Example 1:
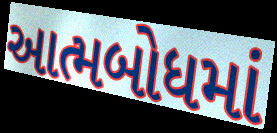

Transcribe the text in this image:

આત્મબોધમાં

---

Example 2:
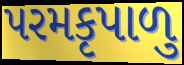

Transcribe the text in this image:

પરમકૃપાળુ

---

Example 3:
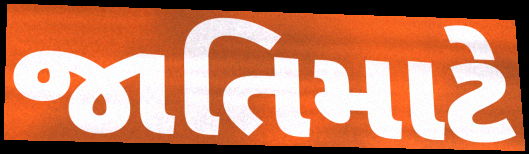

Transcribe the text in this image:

જાતિમાટે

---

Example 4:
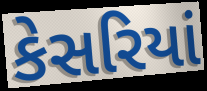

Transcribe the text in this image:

કેસરિયાં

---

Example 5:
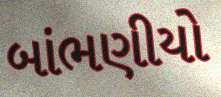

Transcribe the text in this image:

બાંભણીયો